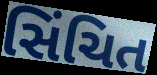
સિંચિત